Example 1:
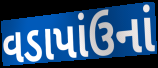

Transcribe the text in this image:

વડાપાંઉનાં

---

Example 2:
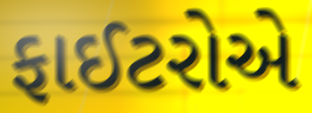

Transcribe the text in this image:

ફાઈટરોએ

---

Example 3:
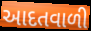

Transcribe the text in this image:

આદતવાળી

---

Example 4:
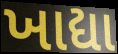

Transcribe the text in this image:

ખાદ્યા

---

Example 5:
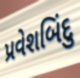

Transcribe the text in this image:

પ્રવેશબિંદુ